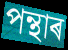
পন্থাৰ